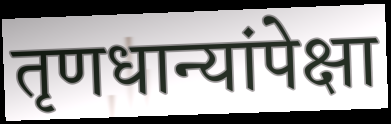
तृणधान्यांपेक्षा